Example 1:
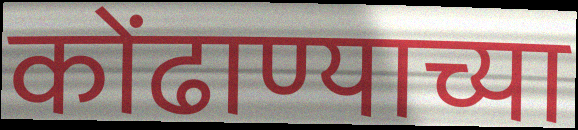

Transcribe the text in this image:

कोंढाण्याच्या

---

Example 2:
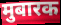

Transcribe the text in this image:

मुबारक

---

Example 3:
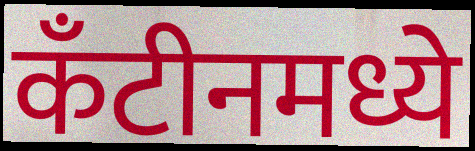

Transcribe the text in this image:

कँटीनमध्ये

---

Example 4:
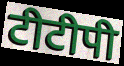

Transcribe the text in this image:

टीटीपी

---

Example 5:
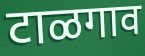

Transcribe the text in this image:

टाळगाव